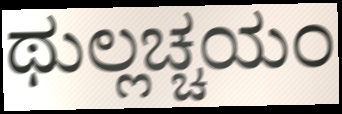
ಥುಲ್ಲಚ್ಚಯಂ